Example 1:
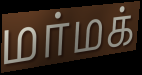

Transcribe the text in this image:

மர்மக்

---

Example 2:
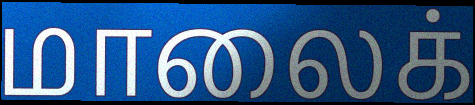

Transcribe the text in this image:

மாலைக்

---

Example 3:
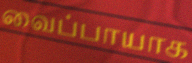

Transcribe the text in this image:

வைப்பாயாக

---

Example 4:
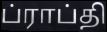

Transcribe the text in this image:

ப்ராப்தி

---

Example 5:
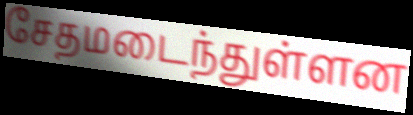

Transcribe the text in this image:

சேதமடைந்துள்ளன